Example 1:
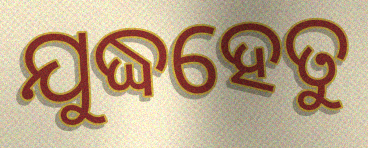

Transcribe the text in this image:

ଯୁଦ୍ଧହେତୁ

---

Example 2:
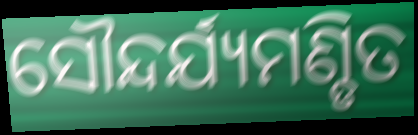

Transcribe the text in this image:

ସୌନ୍ଦର୍ଯ୍ୟମଣ୍ଡିତ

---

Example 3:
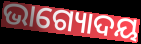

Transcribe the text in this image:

ଭାଗ୍ୟୋଦୟ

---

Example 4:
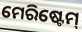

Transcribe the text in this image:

ମେରିଷ୍ଟେମ୍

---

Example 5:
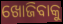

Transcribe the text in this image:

ଖୋଜିବାକୁ